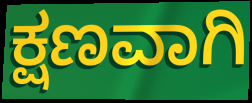
ಕ್ಷಣವಾಗಿ